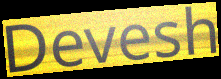
Devesh